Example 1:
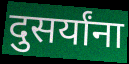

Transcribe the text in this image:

दुसर्यांना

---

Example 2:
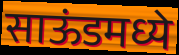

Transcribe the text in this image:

साऊंडमध्ये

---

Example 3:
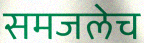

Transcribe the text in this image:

समजलेच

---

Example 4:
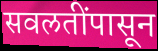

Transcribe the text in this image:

सवलतींपासून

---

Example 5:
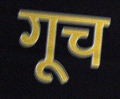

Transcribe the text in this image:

गूच